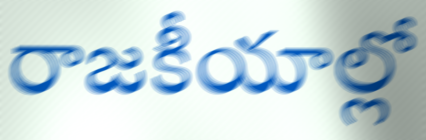
రాజకీయాల్లో